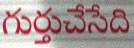
గుర్తుచేసేది